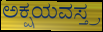
ಅಕ್ಷಯವಸ್ತ್ರ